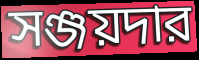
সঞ্জয়দার